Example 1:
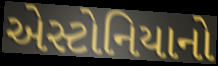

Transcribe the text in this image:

એસ્ટોનિયાનો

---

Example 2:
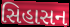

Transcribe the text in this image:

સિહાસન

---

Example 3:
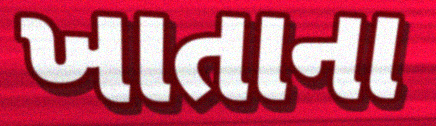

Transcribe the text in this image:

ખાતાના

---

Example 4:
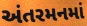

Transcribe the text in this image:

અંતરમનમાં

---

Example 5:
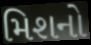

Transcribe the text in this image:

મિશનો